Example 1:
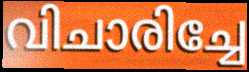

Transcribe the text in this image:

വിചാരിച്ചേ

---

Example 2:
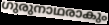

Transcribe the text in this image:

ഗുരുനാഥരാകും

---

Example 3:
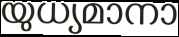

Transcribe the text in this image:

യുധ്യമാനാ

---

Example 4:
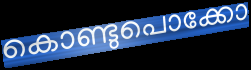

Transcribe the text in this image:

കൊണ്ടുപൊക്കോ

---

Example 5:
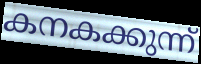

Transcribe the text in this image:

കനകക്കുന്ന്